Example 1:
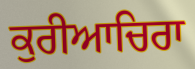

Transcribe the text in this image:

ਕੁਰੀਆਚਿਰਾ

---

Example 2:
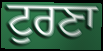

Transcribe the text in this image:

ਟੁਰਣਾ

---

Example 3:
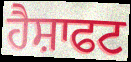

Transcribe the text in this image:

ਹੈਸ਼ਾਫਟ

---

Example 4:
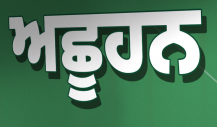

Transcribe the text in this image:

ਅਛੂਹਨ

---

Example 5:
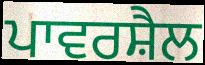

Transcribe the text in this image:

ਪਾਵਰਸ਼ੈਲ